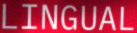
LINGUAL